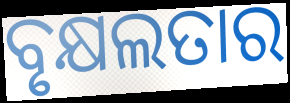
ବୃକ୍ଷଲତାର